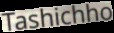
Tashichho